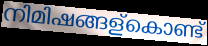
നിമിഷങ്ങള്കൊണ്ട്